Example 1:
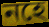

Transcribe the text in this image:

নহে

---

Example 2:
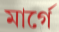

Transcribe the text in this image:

মার্গে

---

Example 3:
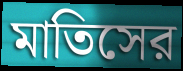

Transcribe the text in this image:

মাতিসের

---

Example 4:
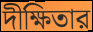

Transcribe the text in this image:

দীক্ষিতার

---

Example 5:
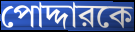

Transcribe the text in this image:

পোদ্দারকে